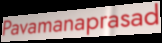
Pavamanaprasad